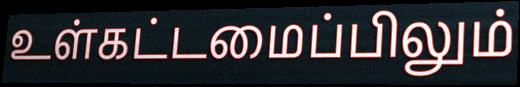
உள்கட்டமைப்பிலும்